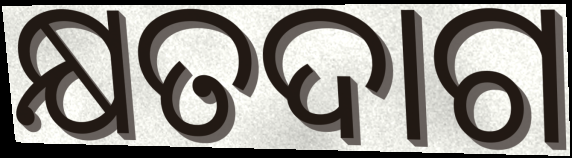
କ୍ଷତଦାଗ